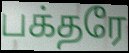
பக்தரே